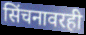
सिंचनावरही